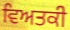
ਵਿਅਤਕੀ